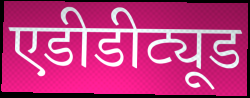
एडीडीट्यूड